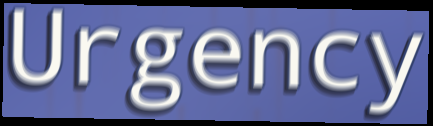
Urgency